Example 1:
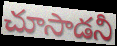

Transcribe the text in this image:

చూసాడనీ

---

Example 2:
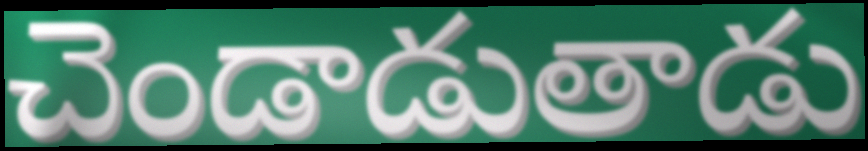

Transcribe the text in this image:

చెండాడుతాడు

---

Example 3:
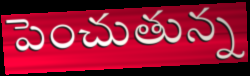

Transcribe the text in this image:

పెంచుతున్న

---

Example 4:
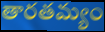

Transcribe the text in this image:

తారతమ్యం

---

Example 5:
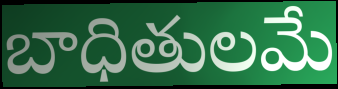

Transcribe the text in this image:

బాధితులమే